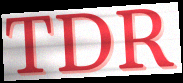
TDR